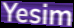
Yesim